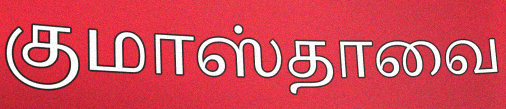
குமாஸ்தாவை